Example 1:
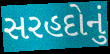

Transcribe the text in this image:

સરહદોનું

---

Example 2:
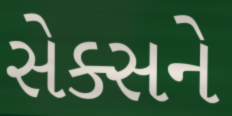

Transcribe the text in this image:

સેક્સને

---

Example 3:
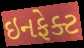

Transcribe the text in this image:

ઇનફેક્ટ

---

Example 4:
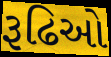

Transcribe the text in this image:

રૂઢિઓ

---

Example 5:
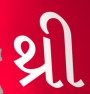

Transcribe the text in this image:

થ્રી